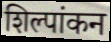
शिल्पांकन